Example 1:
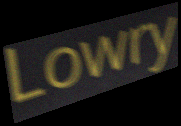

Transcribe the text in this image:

Lowry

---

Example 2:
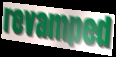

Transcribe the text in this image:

revamped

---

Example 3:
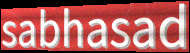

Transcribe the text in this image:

sabhasad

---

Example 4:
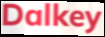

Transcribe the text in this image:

Dalkey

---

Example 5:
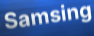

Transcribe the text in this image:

Samsing